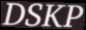
DSKP